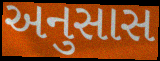
અનુસાસ